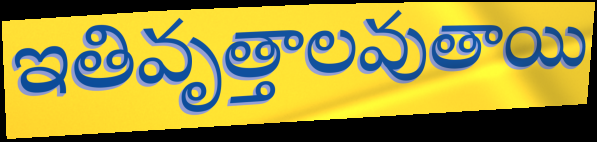
ఇతివృత్తాలవుతాయి